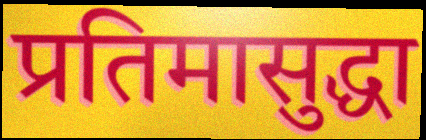
प्रतिमासुद्धा